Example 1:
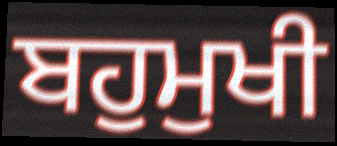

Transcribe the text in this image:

ਬਹੁਮੁਖੀ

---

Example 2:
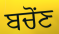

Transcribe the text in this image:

ਬਚੋਂਣ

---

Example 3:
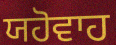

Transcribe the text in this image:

ਯਹੋਵਾਹ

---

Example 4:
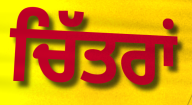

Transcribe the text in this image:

ਚਿੱਤਰਾਂ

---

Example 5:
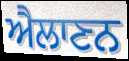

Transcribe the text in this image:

ਐਲਾਣਨ